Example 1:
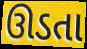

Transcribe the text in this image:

ઊડતા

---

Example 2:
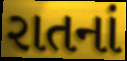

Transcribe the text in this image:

રાતનાં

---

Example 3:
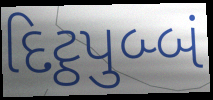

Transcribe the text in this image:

દિટ્ઠપુબ્બં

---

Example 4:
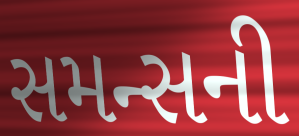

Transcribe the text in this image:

સમન્સની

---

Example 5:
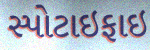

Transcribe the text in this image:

સ્પોટાઇફાઇ